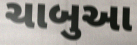
ચાબુઆ